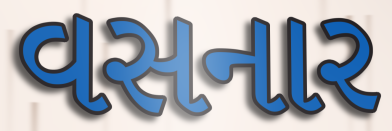
વસનાર